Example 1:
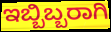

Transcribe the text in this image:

ಇಬ್ಬಿಬ್ಬರಾಗಿ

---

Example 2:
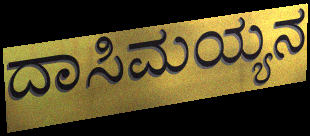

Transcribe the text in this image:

ದಾಸಿಮಯ್ಯನ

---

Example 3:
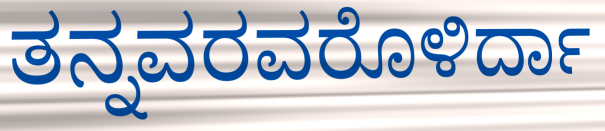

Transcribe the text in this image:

ತನ್ನವರವರೊಳಿರ್ದಾ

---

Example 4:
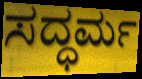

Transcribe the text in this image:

ಸದ್ಧರ್ಮ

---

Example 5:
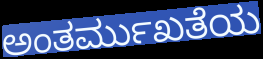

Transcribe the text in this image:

ಅಂತರ್ಮುಖತೆಯ